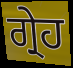
ਗ੍ਰੇਹ